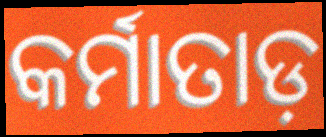
କର୍ମାତାଡ଼